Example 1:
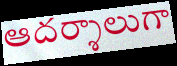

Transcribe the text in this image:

ఆదర్శాలుగా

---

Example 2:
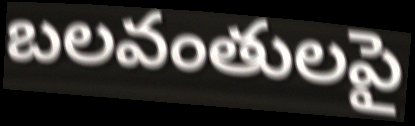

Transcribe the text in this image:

బలవంతులపై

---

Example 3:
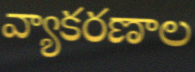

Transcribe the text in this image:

వ్యాకరణాల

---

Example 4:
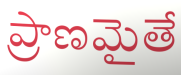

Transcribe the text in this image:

ప్రాణమైతే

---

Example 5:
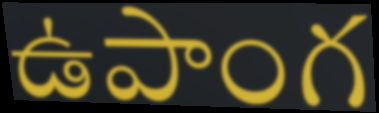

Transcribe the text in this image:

ఉపాంగ